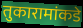
तुकारामांकडे